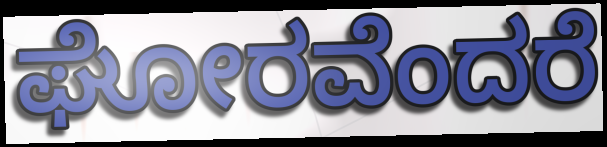
ಘೋರವೆಂದರೆ